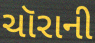
ચૉરાની